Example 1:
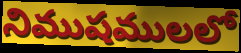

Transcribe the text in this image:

నిముషములలో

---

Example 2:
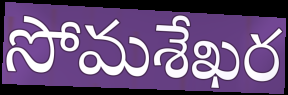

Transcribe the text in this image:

సోమశేఖర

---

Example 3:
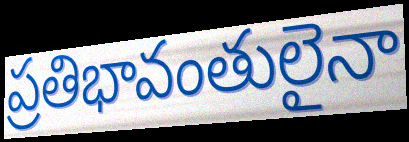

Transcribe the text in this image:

ప్రతిభావంతులైనా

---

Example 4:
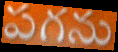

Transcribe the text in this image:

పగను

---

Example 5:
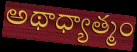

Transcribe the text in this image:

అథాధ్యాత్మం